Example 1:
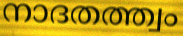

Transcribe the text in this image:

നാദതത്ത്വം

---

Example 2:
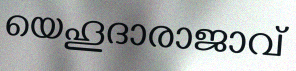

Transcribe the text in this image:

യെഹൂദാരാജാവ്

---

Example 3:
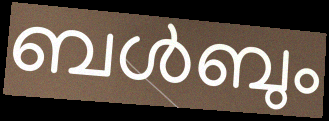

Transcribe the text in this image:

ബൾബും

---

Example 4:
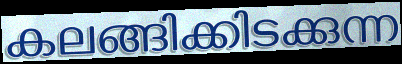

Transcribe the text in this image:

കലങ്ങിക്കിടക്കുന്ന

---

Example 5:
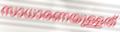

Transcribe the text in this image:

സാധാരണയുള്ളത്